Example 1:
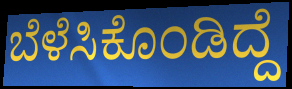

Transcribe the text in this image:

ಬೆಳೆಸಿಕೊಂಡಿದ್ದೆ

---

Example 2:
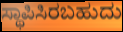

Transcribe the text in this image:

ಸ್ಥಾಪಿಸಿರಬಹುದು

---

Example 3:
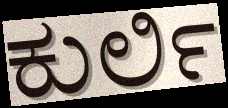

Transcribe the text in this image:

ಕುರ್ಲಿ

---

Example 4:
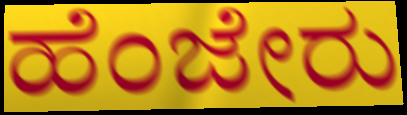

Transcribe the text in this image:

ಹೆಂಜೇರು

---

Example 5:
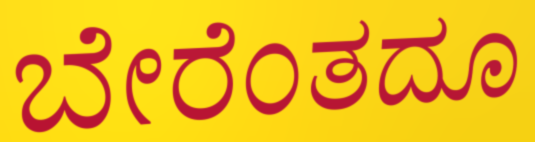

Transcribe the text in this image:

ಬೇರೆಂತದೂ